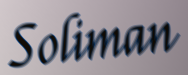
Soliman